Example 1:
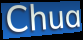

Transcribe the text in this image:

Chua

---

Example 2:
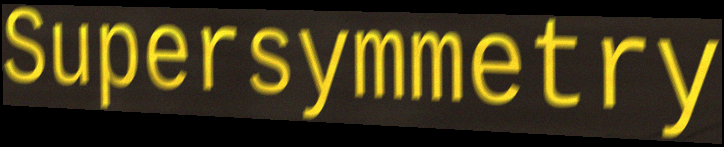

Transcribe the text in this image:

Supersymmetry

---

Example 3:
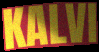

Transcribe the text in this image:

KALVI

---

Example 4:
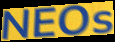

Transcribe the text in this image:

NEOs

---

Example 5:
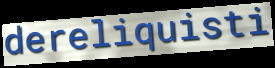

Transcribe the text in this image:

dereliquisti